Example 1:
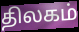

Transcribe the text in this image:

திலகம்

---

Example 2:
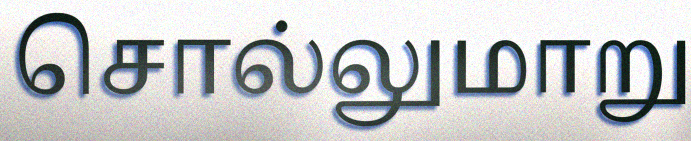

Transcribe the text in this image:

சொல்லுமாறு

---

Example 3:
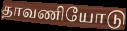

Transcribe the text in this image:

தாவணியோடு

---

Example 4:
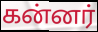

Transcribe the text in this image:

கன்னர்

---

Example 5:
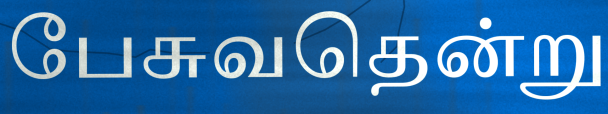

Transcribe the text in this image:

பேசுவதென்று